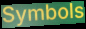
Symbols